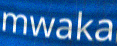
mwaka